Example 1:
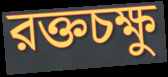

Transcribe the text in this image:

রক্তচক্ষু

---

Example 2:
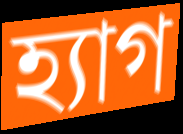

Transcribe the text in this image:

হ্যাগ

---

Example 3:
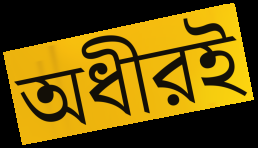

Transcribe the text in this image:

অধীরই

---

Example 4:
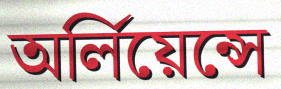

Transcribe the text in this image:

অর্লিয়েন্সে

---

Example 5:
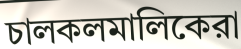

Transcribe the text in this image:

চালকলমালিকেরা